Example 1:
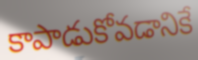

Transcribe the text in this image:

కాపాడుకోవడానికే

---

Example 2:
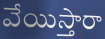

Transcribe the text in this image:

వేయిస్తారా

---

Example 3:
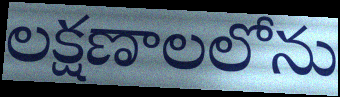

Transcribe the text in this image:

లక్షణాలలోను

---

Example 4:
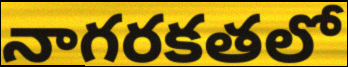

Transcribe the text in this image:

నాగరకతలో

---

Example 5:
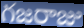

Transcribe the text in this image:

గజరాజు